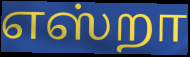
எஸ்றா